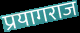
प्रयागराज